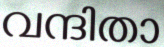
വന്ദിതാ